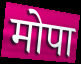
मोपा